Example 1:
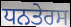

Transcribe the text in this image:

ਧਨਤੇਰਸ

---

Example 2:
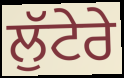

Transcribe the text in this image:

ਲੁੱਟੇਰੇ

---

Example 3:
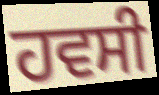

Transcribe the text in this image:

ਹਵਸੀ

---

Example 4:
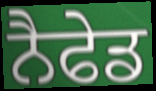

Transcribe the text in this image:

ਨੈਫੇਡ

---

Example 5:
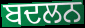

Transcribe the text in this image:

ਬਦਲਨ